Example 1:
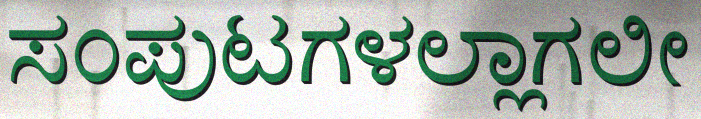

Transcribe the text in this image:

ಸಂಪುಟಗಳಲ್ಲಾಗಲೀ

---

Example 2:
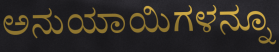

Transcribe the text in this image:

ಅನುಯಾಯಿಗಳನ್ನೂ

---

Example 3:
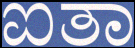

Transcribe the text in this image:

ಐತಾ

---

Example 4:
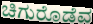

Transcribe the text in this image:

ಚಿಗುರೊಡೆವ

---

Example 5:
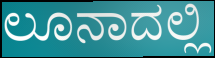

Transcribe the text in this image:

ಲೂನಾದಲ್ಲಿ